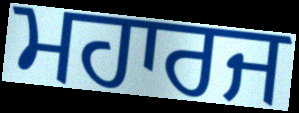
ਮਹਾਰਜ